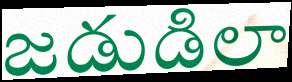
జడుడిలా